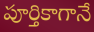
పూర్తికాగానే